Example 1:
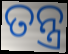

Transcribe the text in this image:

ତନ୍ତ୍ର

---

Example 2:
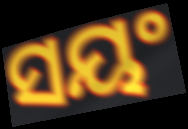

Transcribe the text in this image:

ସୟଂ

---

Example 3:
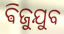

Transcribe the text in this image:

ଵିଜୁଯୁବ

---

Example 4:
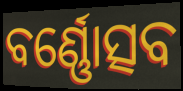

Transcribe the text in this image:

ବର୍ଣ୍ଣୋତ୍ସବ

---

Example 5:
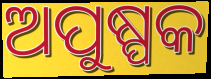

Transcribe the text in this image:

ଅପୁଷ୍ପକ